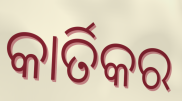
କାର୍ତିକର